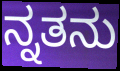
ನ್ನತನು